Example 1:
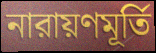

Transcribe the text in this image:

নারায়ণমূর্তি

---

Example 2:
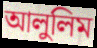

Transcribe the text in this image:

আলুলিম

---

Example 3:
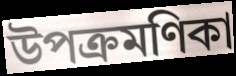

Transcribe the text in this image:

উপক্রমণিকা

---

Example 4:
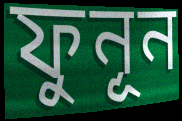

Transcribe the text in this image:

ফুনূন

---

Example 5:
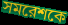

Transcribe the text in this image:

সমরেশকে